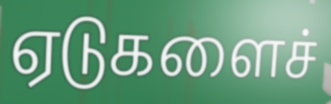
ஏடுகளைச்